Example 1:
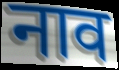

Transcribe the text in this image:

नाव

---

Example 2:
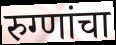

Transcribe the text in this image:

रुग्णांचा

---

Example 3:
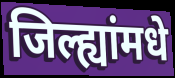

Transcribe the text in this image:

जिल्ह्यांमधे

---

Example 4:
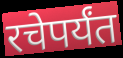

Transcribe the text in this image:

रचेपर्यंत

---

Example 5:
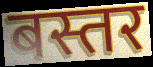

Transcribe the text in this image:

बस्तर